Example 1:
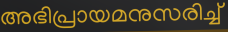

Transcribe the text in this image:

അഭിപ്രായമനുസരിച്ച്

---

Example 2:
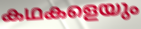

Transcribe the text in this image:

കഥകളെയും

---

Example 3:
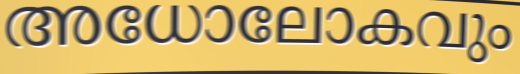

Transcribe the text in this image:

അധോലോകവും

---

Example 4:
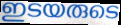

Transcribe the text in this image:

ഇടയരുടെ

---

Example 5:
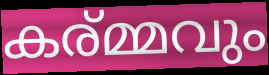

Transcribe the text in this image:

കര്മ്മവും